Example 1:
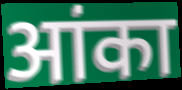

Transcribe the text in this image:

आंका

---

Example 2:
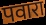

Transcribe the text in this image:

पवारा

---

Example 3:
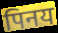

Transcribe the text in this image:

पिनय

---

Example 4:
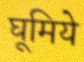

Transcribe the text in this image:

घूमिये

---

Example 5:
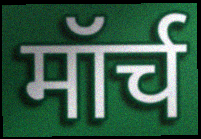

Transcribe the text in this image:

मॉर्च